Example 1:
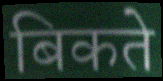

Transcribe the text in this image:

बिकते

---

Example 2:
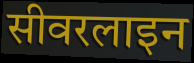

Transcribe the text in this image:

सीवरलाइन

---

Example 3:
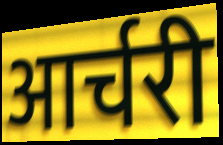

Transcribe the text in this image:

आर्चरी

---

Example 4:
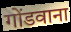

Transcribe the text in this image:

गोंडवाना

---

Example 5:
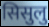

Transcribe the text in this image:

सिसुलु